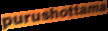
purushottama